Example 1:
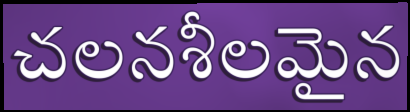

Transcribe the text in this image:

చలనశీలమైన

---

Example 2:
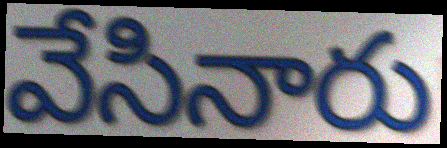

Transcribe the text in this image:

వేసినారు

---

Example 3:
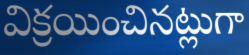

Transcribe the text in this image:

విక్రయించినట్లుగా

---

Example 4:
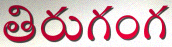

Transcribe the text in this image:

తిరుగంగ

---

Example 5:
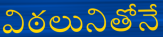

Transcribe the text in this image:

విఠలునితోనే